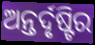
ଅନ୍ତର୍ଦୃଷ୍ଟିର